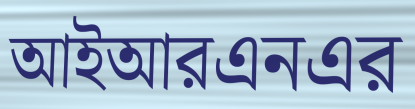
আইআরএনএর